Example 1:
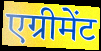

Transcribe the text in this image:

एग्रीमेंट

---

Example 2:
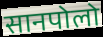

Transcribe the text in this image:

सानपोलो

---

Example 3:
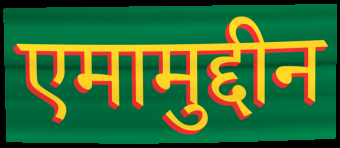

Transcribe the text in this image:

एमामुद्दीन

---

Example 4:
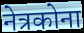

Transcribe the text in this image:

नेत्रकोना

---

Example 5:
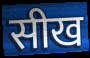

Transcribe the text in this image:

सीख